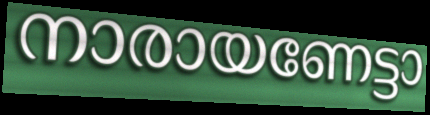
നാരായണേട്ടാ